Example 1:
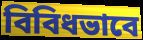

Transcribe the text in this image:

বিবিধভাবে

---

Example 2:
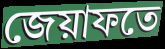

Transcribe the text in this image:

জেয়াফতে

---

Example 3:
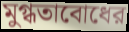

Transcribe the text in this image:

মুগ্ধতাবোধের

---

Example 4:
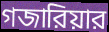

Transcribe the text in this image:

গজারিয়ার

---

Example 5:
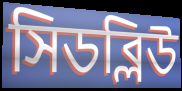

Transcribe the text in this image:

সিডব্লিউ